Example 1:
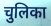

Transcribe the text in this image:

चुलिका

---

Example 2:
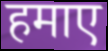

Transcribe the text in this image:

हमाए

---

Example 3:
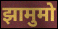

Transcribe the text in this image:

झामुमो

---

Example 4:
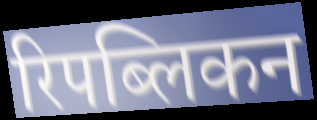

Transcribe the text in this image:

रिपब्लिकन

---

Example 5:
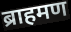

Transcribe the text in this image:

ब्राहमण